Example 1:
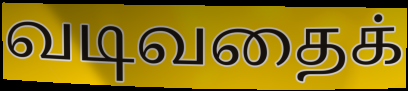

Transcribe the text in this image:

வடிவதைக்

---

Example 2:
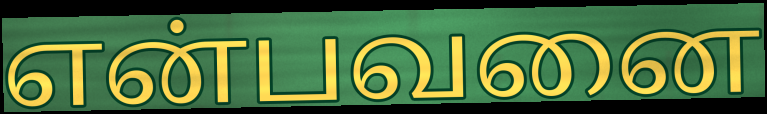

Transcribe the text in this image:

என்பவனை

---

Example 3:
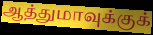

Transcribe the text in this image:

ஆத்துமாவுக்குக்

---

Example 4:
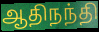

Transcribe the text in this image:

ஆதிநந்தி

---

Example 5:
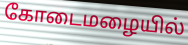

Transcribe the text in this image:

கோடைமழையில்